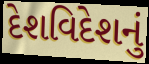
દેશવિદેશનું